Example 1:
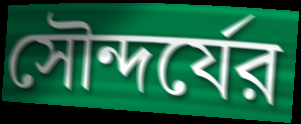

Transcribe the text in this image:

সৌন্দর্যের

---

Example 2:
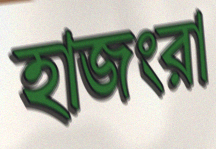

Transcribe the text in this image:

হাজংরা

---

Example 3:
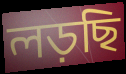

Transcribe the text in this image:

লড়ছি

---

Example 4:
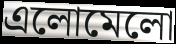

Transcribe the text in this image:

এলোমেলো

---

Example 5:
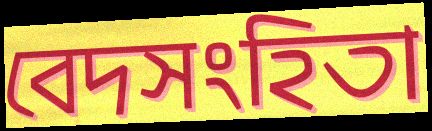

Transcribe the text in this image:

বেদসংহিতা